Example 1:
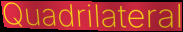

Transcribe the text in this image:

Quadrilateral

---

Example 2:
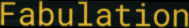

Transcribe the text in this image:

Fabulation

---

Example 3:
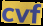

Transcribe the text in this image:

cvf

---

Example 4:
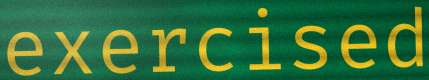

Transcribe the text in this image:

exercised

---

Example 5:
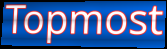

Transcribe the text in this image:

Topmost